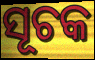
ସୂଚକ